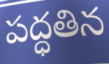
పద్ధతిన